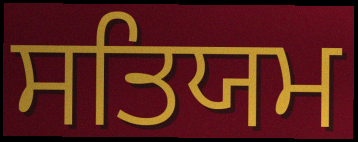
ਸਤਿਯਮ